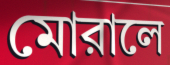
মোরালে